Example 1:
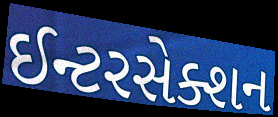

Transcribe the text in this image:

ઈન્ટરસેક્શન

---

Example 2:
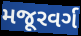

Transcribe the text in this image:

મજૂરવર્ગ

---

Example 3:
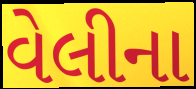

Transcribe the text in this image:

વેલીના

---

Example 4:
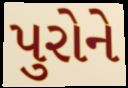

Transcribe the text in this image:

પુરોને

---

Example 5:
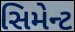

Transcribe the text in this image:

સિમેન્ટ